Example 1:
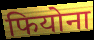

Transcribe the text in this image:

फियोना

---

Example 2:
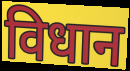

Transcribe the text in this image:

विधान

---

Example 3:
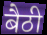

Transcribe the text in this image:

बैठी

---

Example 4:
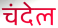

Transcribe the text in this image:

चंदेल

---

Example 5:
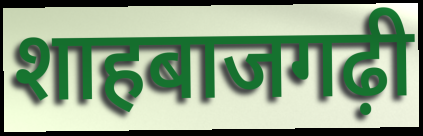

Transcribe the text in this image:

शाहबाजगढ़ी